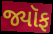
જ્યૉફ